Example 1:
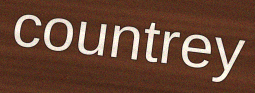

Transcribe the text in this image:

countrey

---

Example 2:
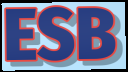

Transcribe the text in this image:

ESB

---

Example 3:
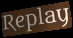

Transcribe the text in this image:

Replay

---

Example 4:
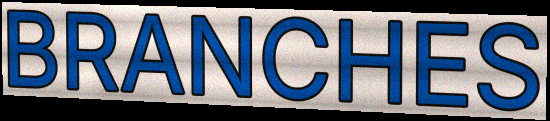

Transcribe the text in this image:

BRANCHES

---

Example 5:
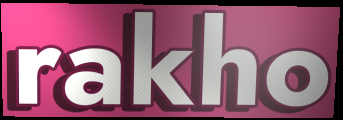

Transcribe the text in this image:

rakho